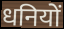
धनियों